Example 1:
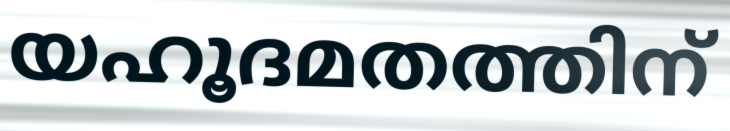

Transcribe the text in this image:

യഹൂദമതത്തിന്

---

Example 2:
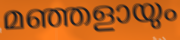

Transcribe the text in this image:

മഞ്ഞളായും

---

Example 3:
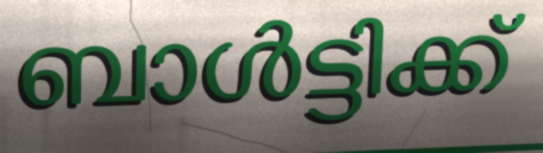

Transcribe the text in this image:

ബാൾട്ടിക്ക്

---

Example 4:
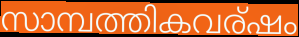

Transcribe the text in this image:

സാമ്പത്തികവര്ഷം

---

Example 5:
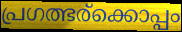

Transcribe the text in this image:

പ്രഗത്ഭര്ക്കൊപ്പം